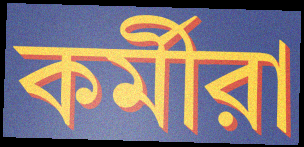
কর্মীরা